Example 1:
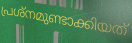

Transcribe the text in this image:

പ്രശ്നമുണ്ടാക്കിയത്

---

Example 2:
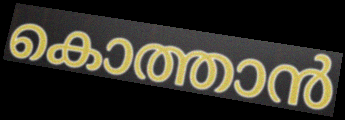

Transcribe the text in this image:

കൊത്താൻ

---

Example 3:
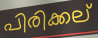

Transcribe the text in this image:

പിരിക്കല്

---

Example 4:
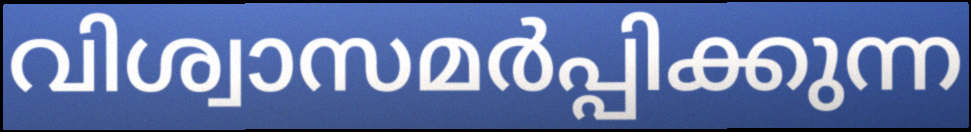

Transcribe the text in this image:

വിശ്വാസമർപ്പിക്കുന്ന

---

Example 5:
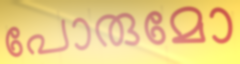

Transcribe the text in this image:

പോരുമോ